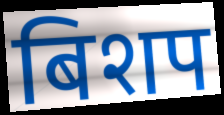
बिशप